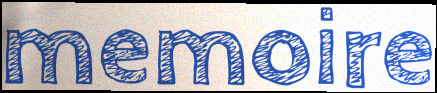
memoire